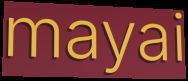
mayai